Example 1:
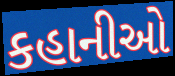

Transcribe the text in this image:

કહાનીઓ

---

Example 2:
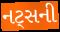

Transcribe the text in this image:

નટ્સની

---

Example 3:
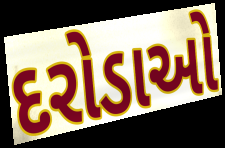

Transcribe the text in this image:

દરોડાઓ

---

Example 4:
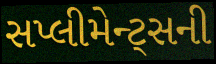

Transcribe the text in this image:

સપ્લીમેન્ટ્સની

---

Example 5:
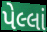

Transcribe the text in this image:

પેલ્લાં